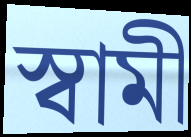
স্বামী